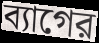
ব্যাগের